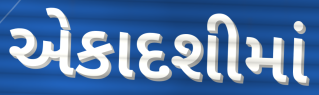
એકાદશીમાં